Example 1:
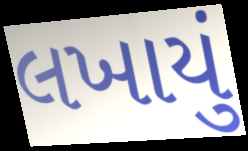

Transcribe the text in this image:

લખાયું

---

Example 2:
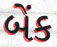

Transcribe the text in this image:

બેંક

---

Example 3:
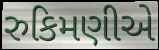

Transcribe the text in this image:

રુકિમણીએ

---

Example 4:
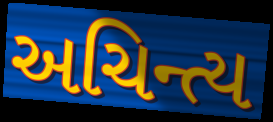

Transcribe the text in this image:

અચિન્ત્ય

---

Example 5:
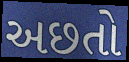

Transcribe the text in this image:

અછતો